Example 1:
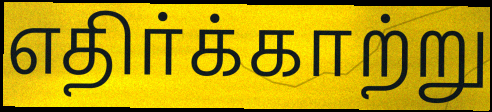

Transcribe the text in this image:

எதிர்க்காற்று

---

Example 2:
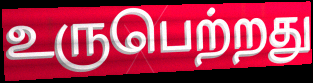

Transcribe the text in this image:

உருபெற்றது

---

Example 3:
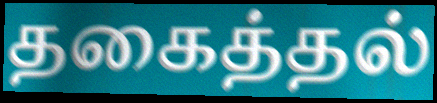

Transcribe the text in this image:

தகைத்தல்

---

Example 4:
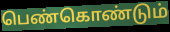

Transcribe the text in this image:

பெண்கொண்டும்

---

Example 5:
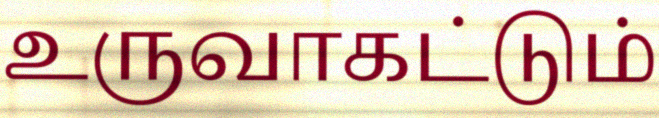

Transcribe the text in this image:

உருவாகட்டும்